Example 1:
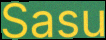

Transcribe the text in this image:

Sasu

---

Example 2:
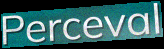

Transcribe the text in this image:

Perceval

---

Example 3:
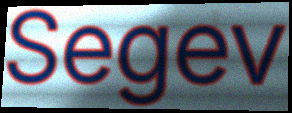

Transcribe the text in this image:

Segev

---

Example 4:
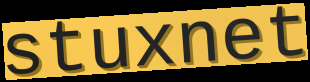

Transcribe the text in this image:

stuxnet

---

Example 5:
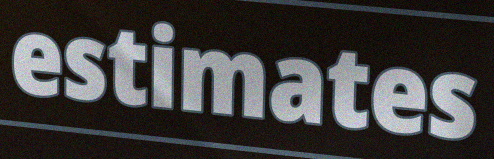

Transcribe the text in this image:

estimates